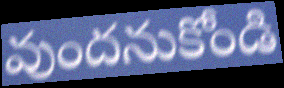
వుందనుకోండి